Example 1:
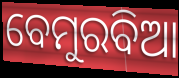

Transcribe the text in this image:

ବେମୁରବିଆ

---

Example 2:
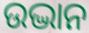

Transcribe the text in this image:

ଉଦ୍ଭାନ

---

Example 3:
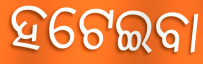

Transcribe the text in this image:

ହଟେଇବା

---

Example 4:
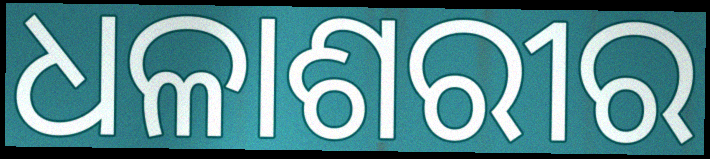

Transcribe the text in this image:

ଧଳାଶରୀର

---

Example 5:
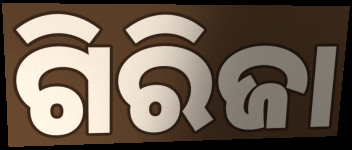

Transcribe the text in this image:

ଗିରିଜା